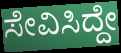
ಸೇವಿಸಿದ್ದೇ